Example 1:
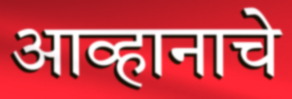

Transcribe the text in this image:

आव्हानाचे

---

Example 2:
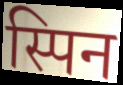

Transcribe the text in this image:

स्पिन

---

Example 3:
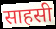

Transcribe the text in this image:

साहसी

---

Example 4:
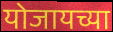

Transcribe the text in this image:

योजायच्या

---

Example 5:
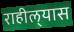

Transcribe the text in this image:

राहील्यास